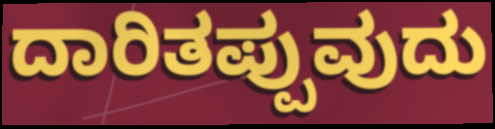
ದಾರಿತಪ್ಪುವುದು